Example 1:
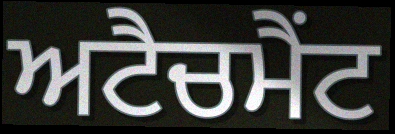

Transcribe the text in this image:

ਅਟੈਚਮੈਂਟ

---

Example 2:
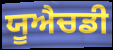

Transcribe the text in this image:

ਯੂਐਚਡੀ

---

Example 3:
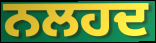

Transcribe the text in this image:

ਨਲਹਦ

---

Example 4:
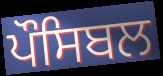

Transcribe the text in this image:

ਪੌਸਿਬਲ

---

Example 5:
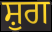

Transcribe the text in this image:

ਸ਼ੁਗ